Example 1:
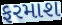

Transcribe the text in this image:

ફરમાશ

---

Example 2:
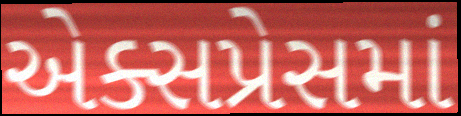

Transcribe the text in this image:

એક્સપ્રેસમાં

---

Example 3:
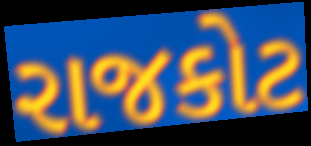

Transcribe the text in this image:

રાજકોટ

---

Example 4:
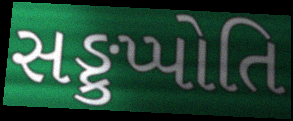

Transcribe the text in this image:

સઙ્કપ્પોતિ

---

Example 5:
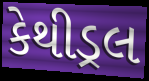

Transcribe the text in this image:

કેથીડ્રલ